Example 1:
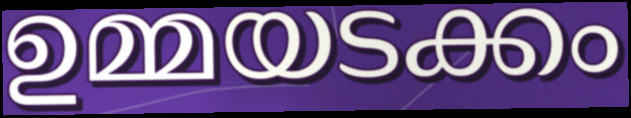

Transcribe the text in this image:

ഉമ്മയടക്കം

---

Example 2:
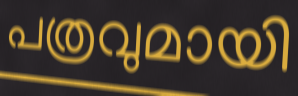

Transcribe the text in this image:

പത്രവുമായി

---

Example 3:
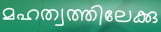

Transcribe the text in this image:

മഹത്വത്തിലേക്കു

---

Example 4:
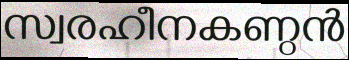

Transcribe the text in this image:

സ്വരഹീനകണ്ഠൻ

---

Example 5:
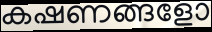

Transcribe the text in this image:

കഷണങ്ങളോ